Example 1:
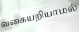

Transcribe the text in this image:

வகையறியாமல்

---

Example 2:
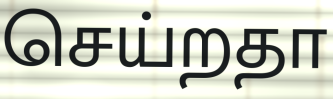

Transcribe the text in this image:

செய்றதா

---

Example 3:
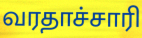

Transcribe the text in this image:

வரதாச்சாரி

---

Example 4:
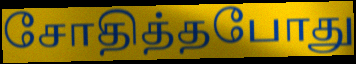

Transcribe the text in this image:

சோதித்தபோது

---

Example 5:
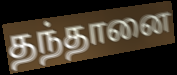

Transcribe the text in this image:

தந்தானை